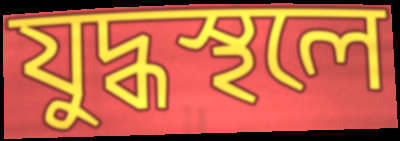
যুদ্ধস্থলে